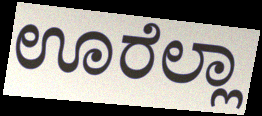
ಊರೆಲ್ಲಾ